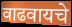
वाढवायचे